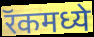
रॅकमध्ये